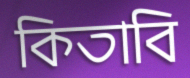
কিতাবি